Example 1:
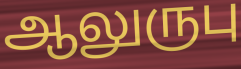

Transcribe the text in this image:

ஆலுருபு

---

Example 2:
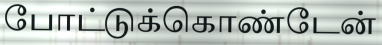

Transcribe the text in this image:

போட்டுக்கொண்டேன்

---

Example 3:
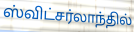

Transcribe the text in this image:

ஸ்விட்சர்லாந்தில்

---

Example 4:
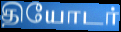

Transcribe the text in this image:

தியோடர்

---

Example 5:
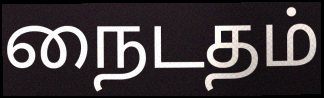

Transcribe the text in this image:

நைடதம்